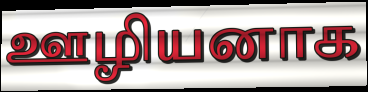
ஊழியனாக